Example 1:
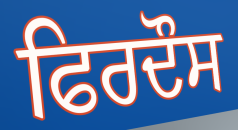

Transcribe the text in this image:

ਫਿਰਦੌਸ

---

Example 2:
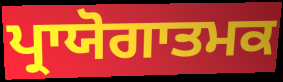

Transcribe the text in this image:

ਪ੍ਰਾਯੋਗਾਤਮਕ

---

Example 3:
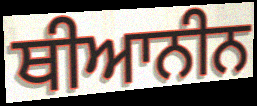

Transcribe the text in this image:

ਥੀਆਨੀਨ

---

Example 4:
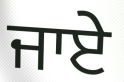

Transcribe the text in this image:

ਜਾਏੇ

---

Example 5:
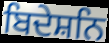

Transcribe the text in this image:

ਬਿਦੇਸ਼ਨਿ